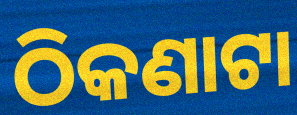
ଠିକଣାଟା